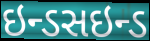
ઇન્ડસઇન્ડ